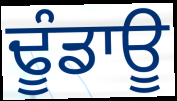
ਢੂੰਡਾਊ